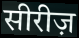
सीरीज़